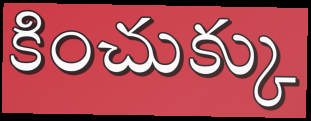
కించుక్కు